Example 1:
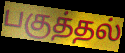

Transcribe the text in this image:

பகுத்தல்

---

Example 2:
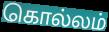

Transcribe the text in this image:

கொல்லம்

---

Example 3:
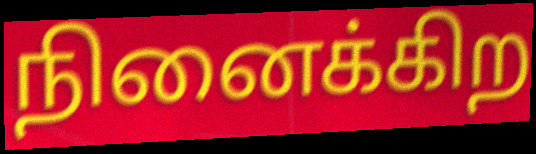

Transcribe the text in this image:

நினைக்கிற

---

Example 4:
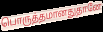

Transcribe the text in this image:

பொருத்தமானதுதானே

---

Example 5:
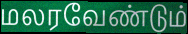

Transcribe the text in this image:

மலரவேண்டும்